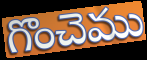
గొంచెము